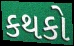
કથકો